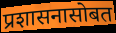
प्रशासनासोबत